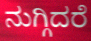
ನುಗ್ಗಿದರೆ